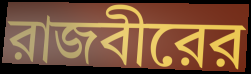
রাজবীরের